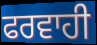
ਫਰਵਾਹੀ